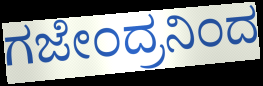
ಗಜೇಂದ್ರನಿಂದ